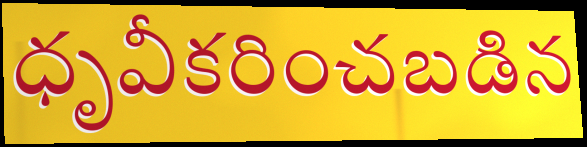
ధృవీకరించబడిన